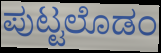
ಪುಟ್ಟಲೊಡಂ